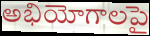
అభియోగాలపై